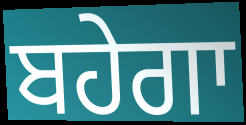
ਬਹੇਗਾ